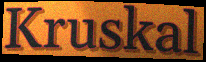
Kruskal